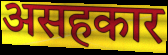
असहकार